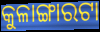
କୁଳାଙ୍ଗାରଟା